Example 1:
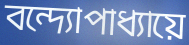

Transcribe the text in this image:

বন্দ্যোপাধ্যায়ে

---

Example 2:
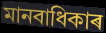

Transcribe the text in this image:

মানবাধিকাৰ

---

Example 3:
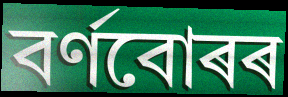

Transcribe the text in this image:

বৰ্ণবোৰৰ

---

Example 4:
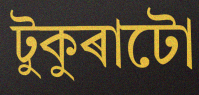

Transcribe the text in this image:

টুকুৰাটো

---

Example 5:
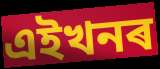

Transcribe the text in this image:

এইখনৰ